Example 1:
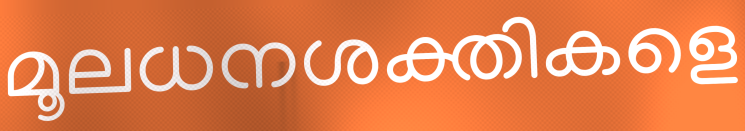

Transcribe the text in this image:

മൂലധനശക്തികളെ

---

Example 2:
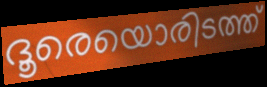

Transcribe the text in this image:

ദൂരെയൊരിടത്ത്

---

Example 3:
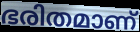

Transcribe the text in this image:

ഭരിതമാണ്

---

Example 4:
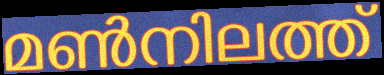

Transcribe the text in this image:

മൺനിലത്ത്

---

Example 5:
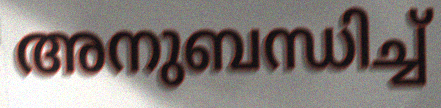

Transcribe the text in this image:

അനുബന്ധിച്ച്